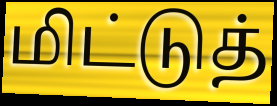
மிட்டுத்